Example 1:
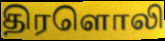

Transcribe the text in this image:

திரளொலி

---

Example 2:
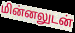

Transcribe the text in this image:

மின்னலுடன்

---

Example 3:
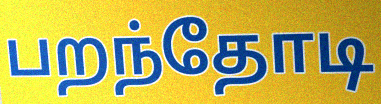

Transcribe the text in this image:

பறந்தோடி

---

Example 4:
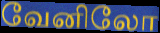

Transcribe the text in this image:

வேனிலோ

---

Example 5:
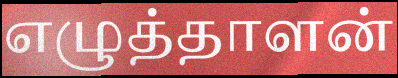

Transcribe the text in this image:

எழுத்தாளன்